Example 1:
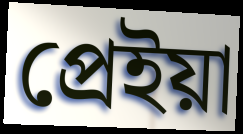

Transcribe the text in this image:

প্রেইয়া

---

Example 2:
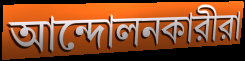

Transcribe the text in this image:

আন্দোলনকারীরা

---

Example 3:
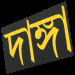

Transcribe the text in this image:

দাঙ্গা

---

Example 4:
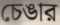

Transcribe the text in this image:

চেঙার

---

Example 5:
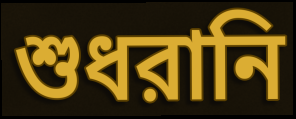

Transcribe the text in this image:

শুধরানি